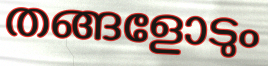
തങ്ങളോടും